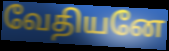
வேதியனே